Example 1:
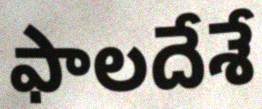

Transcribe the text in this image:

ఫాలదేశే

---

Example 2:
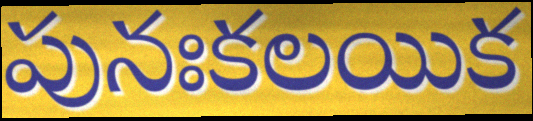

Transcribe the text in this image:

పునఃకలయిక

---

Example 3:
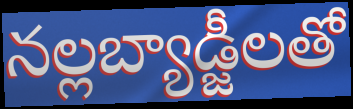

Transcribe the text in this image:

నల్లబ్యాడ్జీలతో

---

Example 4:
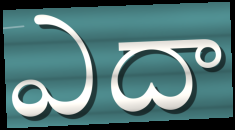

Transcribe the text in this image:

ఎదా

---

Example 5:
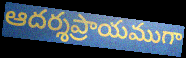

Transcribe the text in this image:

ఆదర్శప్రాయముగా